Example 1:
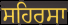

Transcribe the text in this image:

ਸਹਿਰਸਾ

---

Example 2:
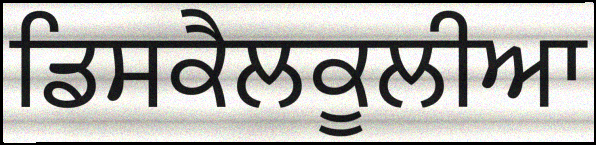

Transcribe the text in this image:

ਡਿਸਕੈਲਕੂਲੀਆ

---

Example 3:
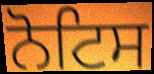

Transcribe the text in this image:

ਨੋਟਿਸ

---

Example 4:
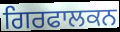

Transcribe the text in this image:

ਗਿਰਫਾਲਕਨ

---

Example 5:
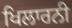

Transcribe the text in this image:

ਖਿਲਾਰਨੀ